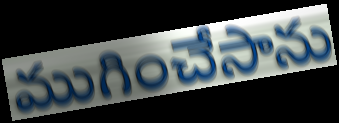
ముగించేసాను